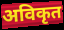
अविकृत